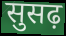
सुसढ़